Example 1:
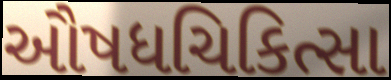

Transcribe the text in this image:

ઔષધચિકિત્સા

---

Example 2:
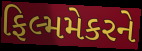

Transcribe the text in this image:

ફિલ્મમેકરને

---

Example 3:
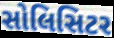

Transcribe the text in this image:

સોલિસિટર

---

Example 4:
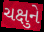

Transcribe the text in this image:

ચક્ષુને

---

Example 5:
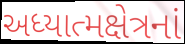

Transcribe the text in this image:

અધ્યાત્મક્ષેત્રનાં